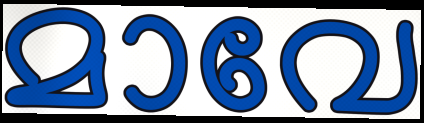
മാവേ